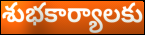
శుభకార్యాలకు